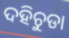
ଦହିଚୁଡା